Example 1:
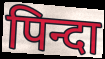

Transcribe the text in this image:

पिन्दा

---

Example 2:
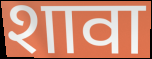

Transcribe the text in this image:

शावा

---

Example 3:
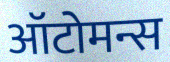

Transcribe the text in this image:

ऑटोमन्स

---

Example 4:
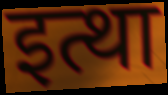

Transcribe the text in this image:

इत्था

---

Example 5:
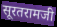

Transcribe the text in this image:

सूरतरामजी